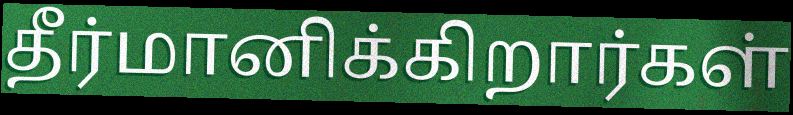
தீர்மானிக்கிறார்கள்